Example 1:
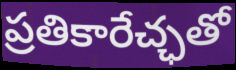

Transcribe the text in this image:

ప్రతికారేచ్ఛతో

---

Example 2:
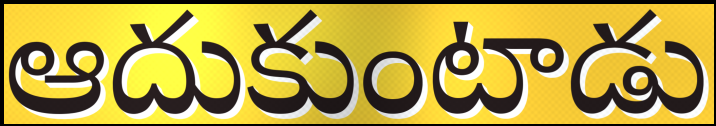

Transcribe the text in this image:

ఆదుకుంటాడు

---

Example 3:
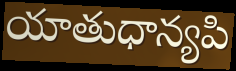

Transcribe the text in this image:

యాతుధాన్యపి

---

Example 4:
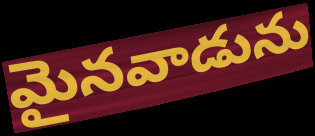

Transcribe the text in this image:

మైనవాడును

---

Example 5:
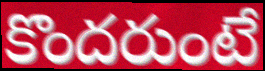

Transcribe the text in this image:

కొందరుంటే